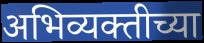
अभिव्यक्तीच्या